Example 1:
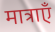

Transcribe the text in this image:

मात्राएँ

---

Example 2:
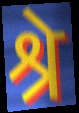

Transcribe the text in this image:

श्रे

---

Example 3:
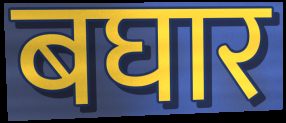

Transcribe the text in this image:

बघार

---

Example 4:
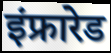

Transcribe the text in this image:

इंफ्रारेड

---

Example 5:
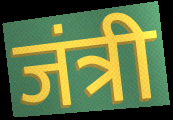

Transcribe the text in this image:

जंत्री